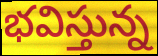
భవిస్తున్న